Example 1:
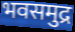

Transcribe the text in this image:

भवसमुद्र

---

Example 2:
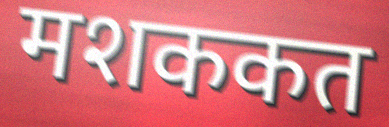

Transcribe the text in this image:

मशककत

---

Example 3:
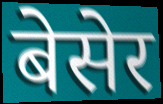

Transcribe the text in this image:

बेसेर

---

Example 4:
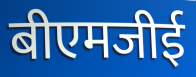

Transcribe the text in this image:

बीएमजीई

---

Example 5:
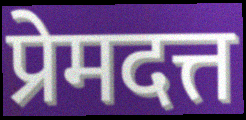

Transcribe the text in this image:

प्रेमदत्त